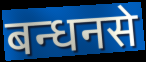
बन्धनसे